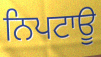
ਨਿਪਟਾਊ